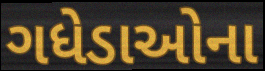
ગધેડાઓના